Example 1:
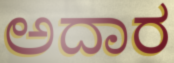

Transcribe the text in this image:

ಅದಾರ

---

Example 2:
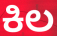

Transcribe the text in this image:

ಕಿಲ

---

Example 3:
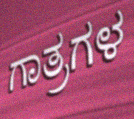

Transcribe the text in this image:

ಗಾತ್ರಗಳ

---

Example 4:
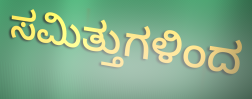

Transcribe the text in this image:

ಸಮಿತ್ತುಗಳಿಂದ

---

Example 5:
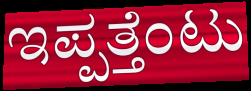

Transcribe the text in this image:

ಇಪ್ಪತ್ತೆಂಟು